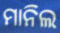
ମାନିଲ